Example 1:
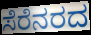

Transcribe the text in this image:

ಸೆರೆನರದ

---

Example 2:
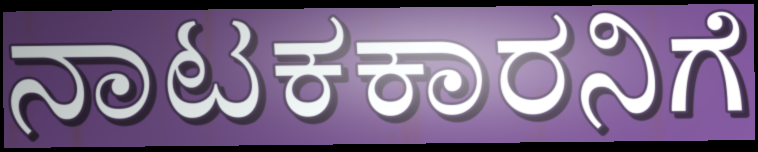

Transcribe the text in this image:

ನಾಟಕಕಾರನಿಗೆ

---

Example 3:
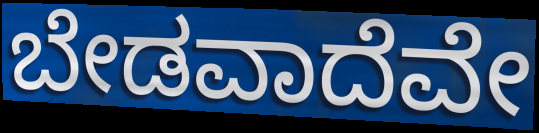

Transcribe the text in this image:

ಬೇಡವಾದೆವೇ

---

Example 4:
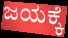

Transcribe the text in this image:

ಜಯಕ್ಕೆ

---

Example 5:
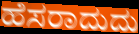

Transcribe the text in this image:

ಹೆಸರಾದುದು